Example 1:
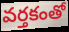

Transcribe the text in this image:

వర్తకంతో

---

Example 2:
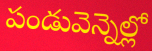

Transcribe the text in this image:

పండువెన్నెల్లో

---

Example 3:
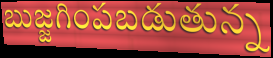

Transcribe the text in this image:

బుజ్జగింపబడుతున్న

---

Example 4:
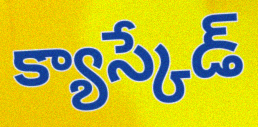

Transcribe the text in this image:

క్యాస్కేడ్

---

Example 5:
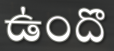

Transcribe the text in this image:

ఉందొ